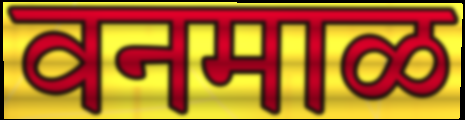
वनमाळ